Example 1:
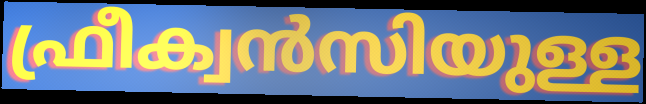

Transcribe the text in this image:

ഫ്രീക്വൻസിയുള്ള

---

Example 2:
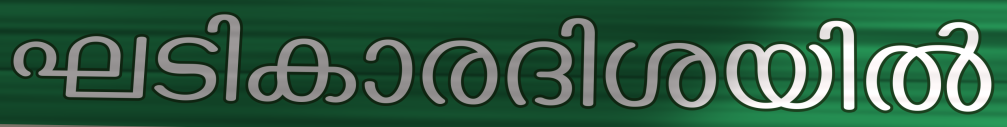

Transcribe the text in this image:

ഘടികാരദിശയിൽ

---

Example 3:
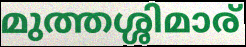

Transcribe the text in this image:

മുത്തശ്ശിമാര്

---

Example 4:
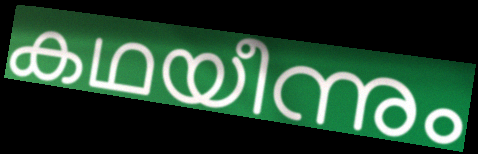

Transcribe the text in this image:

കഥയീന്നും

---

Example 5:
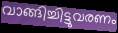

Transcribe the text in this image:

വാങ്ങിച്ചിട്ടുവരണം